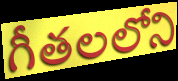
గీతలలోని